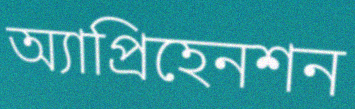
অ্যাপ্রিহেনশন